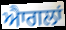
ਐਾਗਲਾਂ